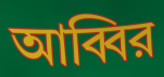
আব্বির